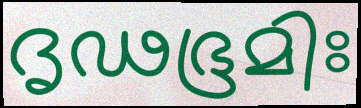
ദൃഢഭൂമിഃ